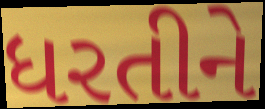
ધરતીને